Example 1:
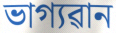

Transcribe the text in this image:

ভাগ্যৱান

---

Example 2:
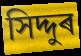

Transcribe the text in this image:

সিদ্দুৰ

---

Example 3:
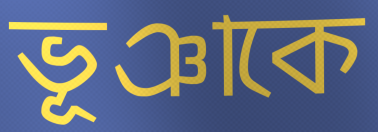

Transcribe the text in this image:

ভূঞাকে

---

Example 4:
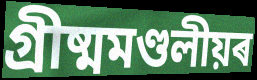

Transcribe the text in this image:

গ্ৰীষ্মমণ্ডলীয়ৰ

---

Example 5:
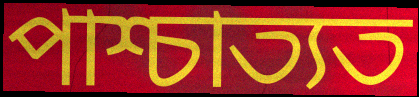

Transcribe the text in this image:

পাশ্চাত্যত